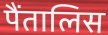
पैंतालिस